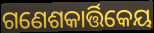
ଗଣେଶକାର୍ତ୍ତିକେୟ